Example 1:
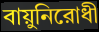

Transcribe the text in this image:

বায়ুনিরোধী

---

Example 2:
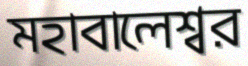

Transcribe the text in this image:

মহাবালেশ্বর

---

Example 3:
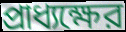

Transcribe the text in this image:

প্রাধ্যক্ষের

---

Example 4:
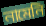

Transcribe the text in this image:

নামেনি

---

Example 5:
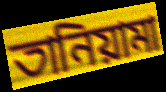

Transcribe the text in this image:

তানিয়ামা